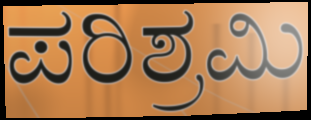
ಪರಿಶ್ರಮಿ